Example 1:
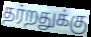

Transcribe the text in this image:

தர்றதுக்கு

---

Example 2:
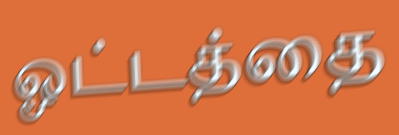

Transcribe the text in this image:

ஓட்டத்தை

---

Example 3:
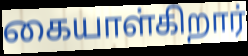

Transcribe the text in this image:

கையாள்கிறார்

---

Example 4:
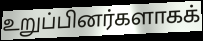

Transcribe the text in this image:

உறுப்பினர்களாகக்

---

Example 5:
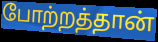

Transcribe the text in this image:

போற்றத்தான்